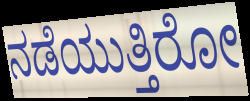
ನಡೆಯುತ್ತಿರೋ